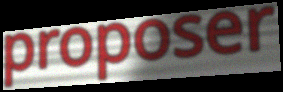
proposer